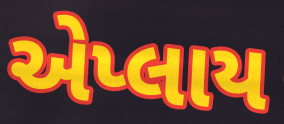
એપ્લાય